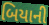
બિયાની